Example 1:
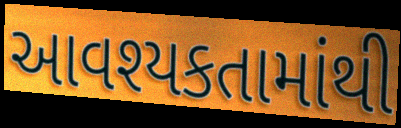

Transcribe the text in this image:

આવશ્યકતામાંથી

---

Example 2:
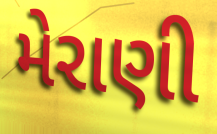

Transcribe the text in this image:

મેરાણી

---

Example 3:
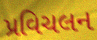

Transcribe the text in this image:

પ્રવિચલન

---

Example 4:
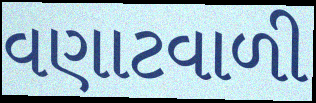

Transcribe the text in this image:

વણાટવાળી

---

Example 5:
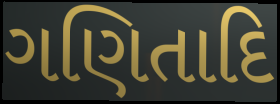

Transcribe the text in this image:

ગણિતાદિ